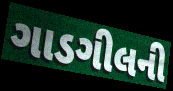
ગાડગીલની